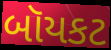
બૉયકટ